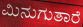
ಮಿನುಗುತಾರೆ